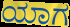
ಯಾಗ